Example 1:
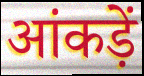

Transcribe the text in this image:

आंकड़ें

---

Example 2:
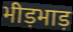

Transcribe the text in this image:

भीड़भाड़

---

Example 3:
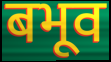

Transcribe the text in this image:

बभूव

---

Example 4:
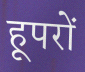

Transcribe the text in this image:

हूपरों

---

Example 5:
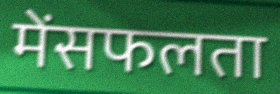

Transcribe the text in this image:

मेंसफलता